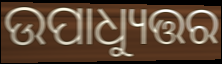
ଉପାଧ୍ୟୁତ୍ତର